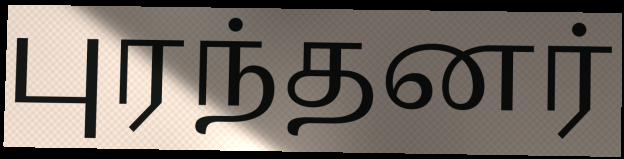
புரந்தனர்